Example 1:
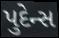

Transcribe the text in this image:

પુદેન્સ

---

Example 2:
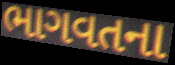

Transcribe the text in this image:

ભાગવતના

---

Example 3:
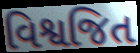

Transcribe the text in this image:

વિશ્વજિત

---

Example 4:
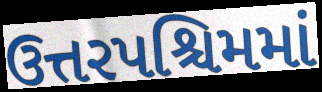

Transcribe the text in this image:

ઉત્તરપશ્ચિમમાં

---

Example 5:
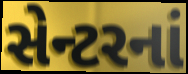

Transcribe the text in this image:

સેન્ટરનાં